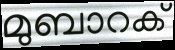
മുബാറക്